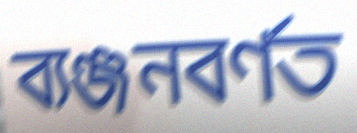
ব্যঞ্জনবৰ্ণত